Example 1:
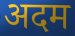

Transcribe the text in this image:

अदम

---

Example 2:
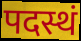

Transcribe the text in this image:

पदस्थं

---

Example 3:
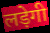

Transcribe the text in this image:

लड़ेगी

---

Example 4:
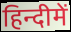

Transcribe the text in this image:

हिन्दीमें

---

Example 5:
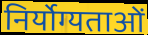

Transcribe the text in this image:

निर्योग्यताओं